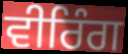
ਵੀਰਿੰਗ